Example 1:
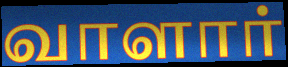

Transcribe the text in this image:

வாளார்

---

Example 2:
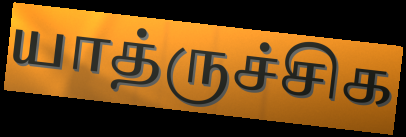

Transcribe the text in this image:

யாத்ருச்சிக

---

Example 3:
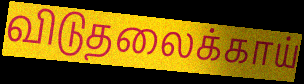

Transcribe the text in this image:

விடுதலைக்காய்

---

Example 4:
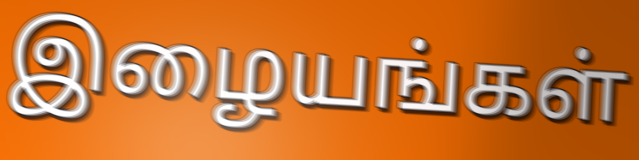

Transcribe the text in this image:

இழையங்கள்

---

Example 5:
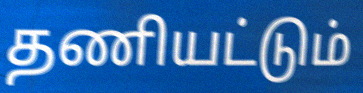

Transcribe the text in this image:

தணியட்டும்